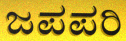
ಜಪಪರಿ